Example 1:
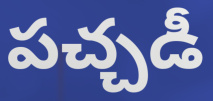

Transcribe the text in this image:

పచ్చడీ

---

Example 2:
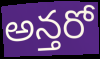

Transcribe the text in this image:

అన్తరో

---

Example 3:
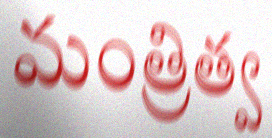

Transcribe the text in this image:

మంత్రిత్వ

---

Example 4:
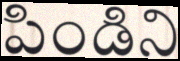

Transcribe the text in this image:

పిండిని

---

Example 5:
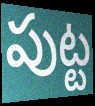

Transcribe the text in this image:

పుట్ట